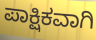
ಪಾಕ್ಷಿಕವಾಗಿ